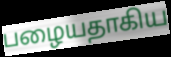
பழையதாகிய